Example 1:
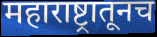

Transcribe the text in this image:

महाराष्ट्रातूनच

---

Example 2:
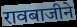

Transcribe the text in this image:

रावबाजीने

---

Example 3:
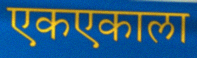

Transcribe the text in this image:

एकएकाला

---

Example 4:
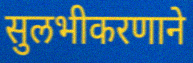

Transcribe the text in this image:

सुलभीकरणाने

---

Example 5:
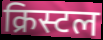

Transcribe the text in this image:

क्रिस्टल